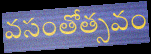
వసంతోత్సవం